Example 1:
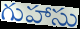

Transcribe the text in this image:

గుహాసు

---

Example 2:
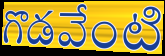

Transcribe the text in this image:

గొడవేంటి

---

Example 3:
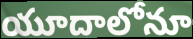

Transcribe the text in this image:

యూదాలోనూ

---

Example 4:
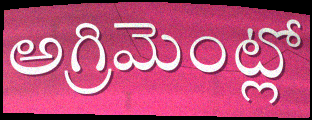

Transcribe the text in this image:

అగ్రిమెంట్లో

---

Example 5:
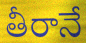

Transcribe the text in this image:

తీరానే